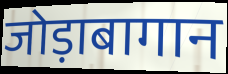
जोड़ाबागान